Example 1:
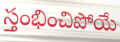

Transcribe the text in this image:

స్తంభించిపోయే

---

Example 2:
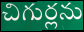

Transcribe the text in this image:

చిగుర్లను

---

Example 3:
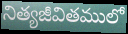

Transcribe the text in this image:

నిత్యజీవితములో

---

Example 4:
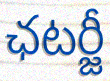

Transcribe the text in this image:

ఛటర్జీ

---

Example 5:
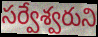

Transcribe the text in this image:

సర్వేశ్వరుని